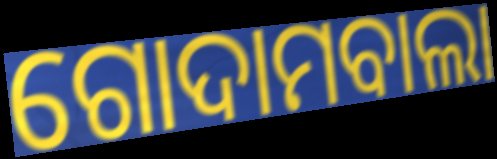
ଗୋଦାମବାଲା